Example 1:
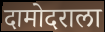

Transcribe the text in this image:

दामोदराला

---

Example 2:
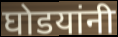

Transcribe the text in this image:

घोडयांनी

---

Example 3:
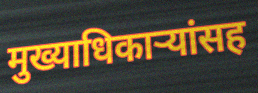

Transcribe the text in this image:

मुख्याधिकाऱ्यांसह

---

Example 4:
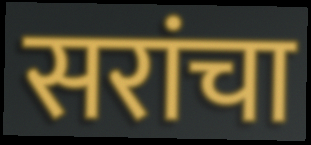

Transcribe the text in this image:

सरांचा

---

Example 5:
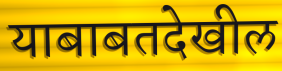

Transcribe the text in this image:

याबाबतदेखील